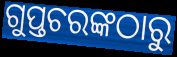
ଗୁପ୍ତଚରଙ୍କଠାରୁ